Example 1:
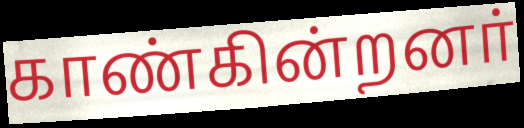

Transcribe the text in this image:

காண்கின்றனர்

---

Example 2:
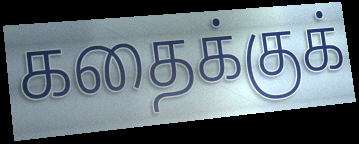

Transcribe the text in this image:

கதைக்குக்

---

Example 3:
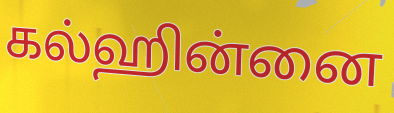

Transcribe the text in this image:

கல்ஹின்னை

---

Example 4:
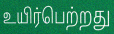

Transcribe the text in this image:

உயிர்பெற்றது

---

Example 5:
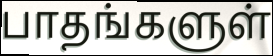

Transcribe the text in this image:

பாதங்களுள்